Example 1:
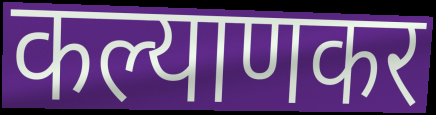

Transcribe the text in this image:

कल्याणकर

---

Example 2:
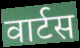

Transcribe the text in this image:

वार्टस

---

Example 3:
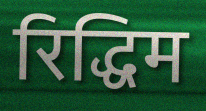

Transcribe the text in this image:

रिद्धिम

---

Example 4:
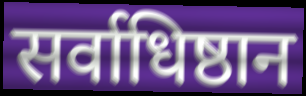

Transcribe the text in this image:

सर्वाधिष्ठान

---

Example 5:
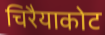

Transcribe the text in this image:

चिरैयाकोट